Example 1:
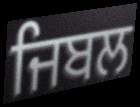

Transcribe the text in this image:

ਜਿਬਲ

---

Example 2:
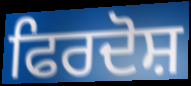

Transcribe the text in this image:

ਫਿਰਦੋਸ਼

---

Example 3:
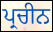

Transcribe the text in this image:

ਪ੍ਰਚੀਨ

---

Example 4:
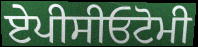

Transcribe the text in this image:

ਏਪੀਸੀਓਟੋਮੀ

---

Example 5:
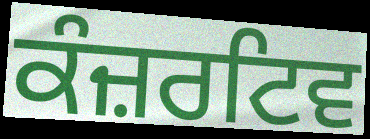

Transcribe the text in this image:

ਕੰਜ਼ਰਟਿਵ